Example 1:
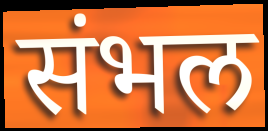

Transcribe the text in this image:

संभल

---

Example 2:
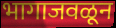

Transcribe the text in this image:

भागाजवळून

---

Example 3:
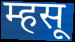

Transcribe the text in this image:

म्हसू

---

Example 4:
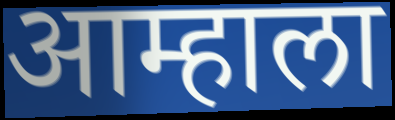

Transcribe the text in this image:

आम्हाला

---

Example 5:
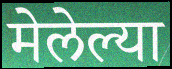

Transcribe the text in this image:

मेलेल्या